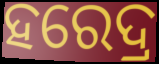
ହରେଦ୍ର